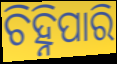
ଚିହ୍ନିପାରି